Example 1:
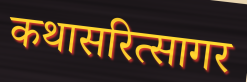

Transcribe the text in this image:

कथासरित्सागर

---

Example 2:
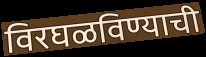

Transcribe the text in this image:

विरघळविण्याची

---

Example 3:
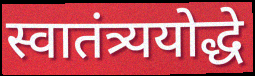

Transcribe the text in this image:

स्वातंत्र्ययोद्धे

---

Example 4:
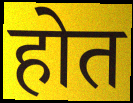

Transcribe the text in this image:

होत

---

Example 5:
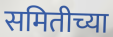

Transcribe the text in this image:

समितीच्‍या